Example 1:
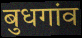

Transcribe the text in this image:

बुधगांव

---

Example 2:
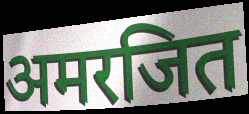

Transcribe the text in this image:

अमरजित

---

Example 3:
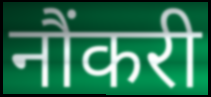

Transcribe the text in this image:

नौंकरी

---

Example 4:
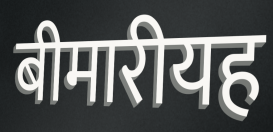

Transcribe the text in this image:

बीमारीयह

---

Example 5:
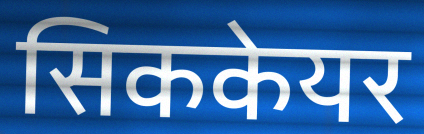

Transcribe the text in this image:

सिककेयर